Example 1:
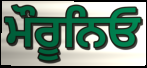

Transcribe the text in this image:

ਮੌਰੂਨਿਓ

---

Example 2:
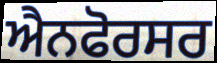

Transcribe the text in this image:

ਐਨਫੋਰਸਰ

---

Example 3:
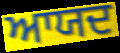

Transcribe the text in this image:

ਆਯਦ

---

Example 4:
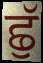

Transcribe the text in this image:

ਛੁੱ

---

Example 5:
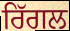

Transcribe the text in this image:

ਰਿੱਗਲ